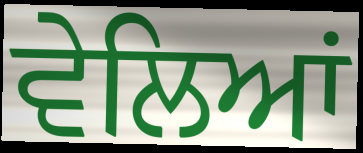
ਵੇਲਿਆਂ